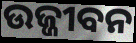
ଉଜ୍ଜୀବନ